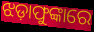
ଝଡ଼ାଫୁଙ୍କାରେ